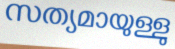
സത്യമായുള്ളു